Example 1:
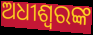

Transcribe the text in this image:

ଅଧୀଶ୍ୱରଙ୍କ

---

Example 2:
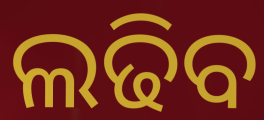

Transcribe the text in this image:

ଲଢିବ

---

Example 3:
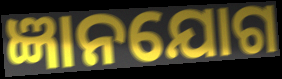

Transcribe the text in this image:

ଜ୍ଞାନଯୋଗ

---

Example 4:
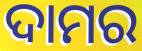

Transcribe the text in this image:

ଦାମର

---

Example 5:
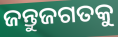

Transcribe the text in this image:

ଜନ୍ତୁଜଗତକୁ